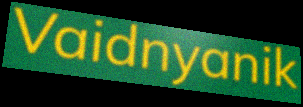
Vaidnyanik